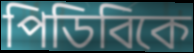
পিডিবিকে